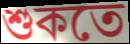
শুকতে